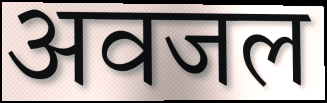
अवजल